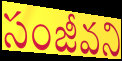
సంజీవని